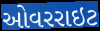
ઓવરરાઇટ